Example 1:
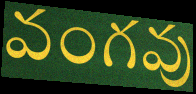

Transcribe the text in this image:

వంగవు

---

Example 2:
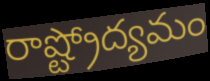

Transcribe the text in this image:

రాష్ట్రోద్యమం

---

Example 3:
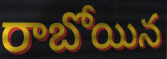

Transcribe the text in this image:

రాబోయిన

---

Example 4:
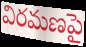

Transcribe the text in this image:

విరమణపై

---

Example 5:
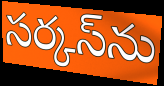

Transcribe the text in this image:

సర్కస్‌ను